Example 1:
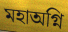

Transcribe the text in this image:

মহাঅগ্নি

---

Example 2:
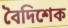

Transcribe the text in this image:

বৈদিশেক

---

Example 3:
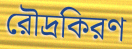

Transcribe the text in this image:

রৌদ্রকিরণ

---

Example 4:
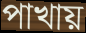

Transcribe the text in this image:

পাখায়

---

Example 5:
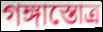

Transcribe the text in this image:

গঙ্গাস্তোত্র